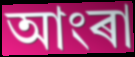
আংৰা